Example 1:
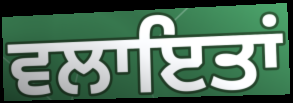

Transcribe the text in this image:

ਵਲਾਇਤਾਂ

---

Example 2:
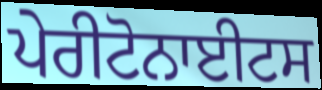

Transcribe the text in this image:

ਪੇਰੀਟੋਨਾਈਟਸ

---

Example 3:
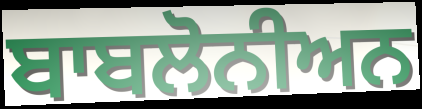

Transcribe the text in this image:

ਬਾਬਲੋਨੀਅਨ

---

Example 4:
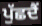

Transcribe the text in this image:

ਪੁੱਛਦੈਂ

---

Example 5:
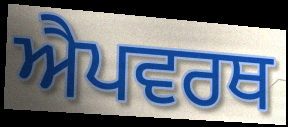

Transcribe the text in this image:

ਐਪਵਰਥ